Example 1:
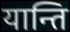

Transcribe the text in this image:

यान्ति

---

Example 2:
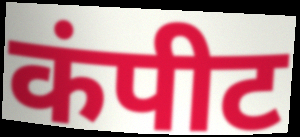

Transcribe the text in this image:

कंपीट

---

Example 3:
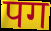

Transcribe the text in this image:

पग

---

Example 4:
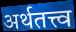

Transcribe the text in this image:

अर्थतत्त्व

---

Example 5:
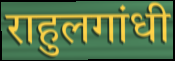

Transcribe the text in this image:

राहुलगांधी